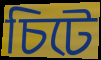
চিটে